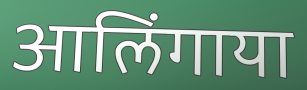
आलिंगाया